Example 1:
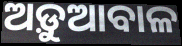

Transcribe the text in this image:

ଅଡ଼ୁଆବାଳ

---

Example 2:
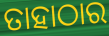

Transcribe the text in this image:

ତାହାଠାର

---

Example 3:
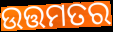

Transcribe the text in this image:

ଉତ୍ତମତର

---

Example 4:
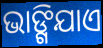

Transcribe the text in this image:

ଭାଙ୍ଗିଯାଏ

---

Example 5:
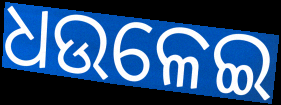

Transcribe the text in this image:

ଧଉଳେଇ